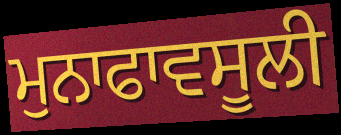
ਮੁਨਾਫਾਵਸੂਲੀ